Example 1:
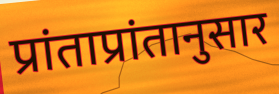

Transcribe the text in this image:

प्रांताप्रांतानुसार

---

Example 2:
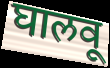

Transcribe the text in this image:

घालवू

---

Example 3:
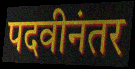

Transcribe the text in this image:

पदवीनंतर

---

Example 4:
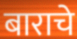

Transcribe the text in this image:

बाराचे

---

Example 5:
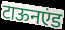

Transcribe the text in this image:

टाऊनएंड